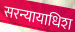
सरन्यायाधिश